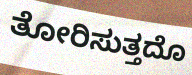
ತೋರಿಸುತ್ತದೊ